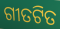
ଗୀତଟିତ